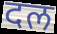
दल